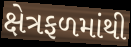
ક્ષેત્રફળમાંથી